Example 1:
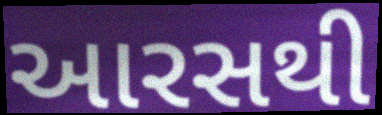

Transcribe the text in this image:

આરસથી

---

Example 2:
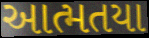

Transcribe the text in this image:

આત્મતયા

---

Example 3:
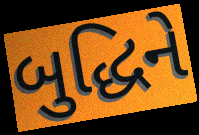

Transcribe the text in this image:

બુદ્ધિને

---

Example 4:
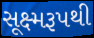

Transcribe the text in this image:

સૂક્ષ્મરૂપથી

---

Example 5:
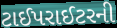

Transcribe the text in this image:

ટાઈપરાઈટરની